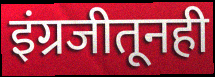
इंग्रजीतूनही